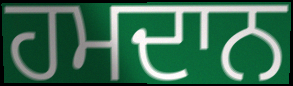
ਹਮਦਾਨ